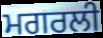
ਮਗਰਲੀ